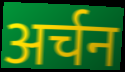
अर्चन